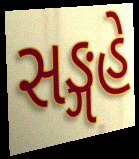
સઙ્ગહે